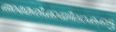
അമേരിക്കയിലാകട്ടെ